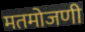
मतमोजणी